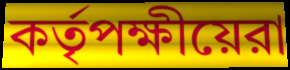
কর্তৃপক্ষীয়েরা